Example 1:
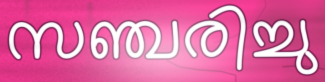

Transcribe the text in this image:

സഞ്ചരിച്ചു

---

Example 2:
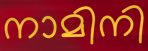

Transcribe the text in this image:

നാമിനി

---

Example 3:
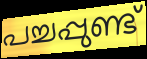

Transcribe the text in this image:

പച്ചപ്പുണ്ട്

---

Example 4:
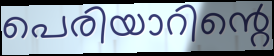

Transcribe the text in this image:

പെരിയാറിന്റെ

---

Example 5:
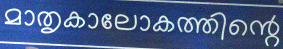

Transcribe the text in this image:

മാതൃകാലോകത്തിന്റെ